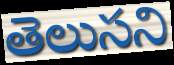
తెలుసని